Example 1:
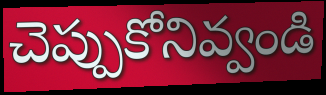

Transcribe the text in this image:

చెప్పుకోనివ్వండి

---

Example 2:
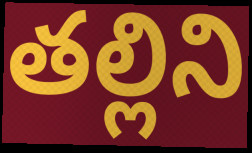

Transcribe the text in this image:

తల్లిని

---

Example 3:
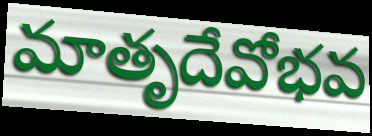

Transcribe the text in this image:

మాతృదేవోభవ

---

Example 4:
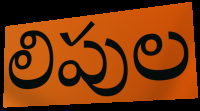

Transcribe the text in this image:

లిపుల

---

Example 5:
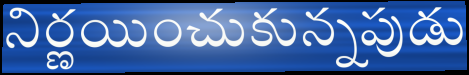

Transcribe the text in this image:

నిర్ణయించుకున్నపుడు